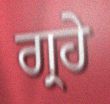
ਗ੍ਰਹੇ